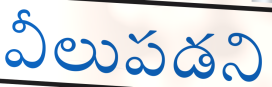
వీలుపడని